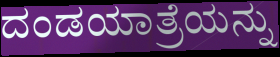
ದಂಡಯಾತ್ರೆಯನ್ನು